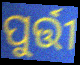
ପୁର୍ତ୍ତୀ